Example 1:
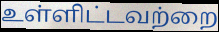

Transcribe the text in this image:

உள்ளிட்டவற்றை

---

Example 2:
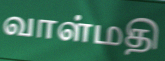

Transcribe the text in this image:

வாள்மதி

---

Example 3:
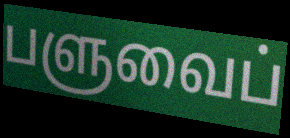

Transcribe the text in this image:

பளுவைப்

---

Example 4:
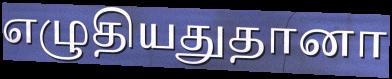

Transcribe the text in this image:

எழுதியதுதானா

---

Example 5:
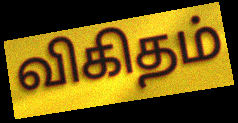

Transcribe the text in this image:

விகிதம்